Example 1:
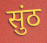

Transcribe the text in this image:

सुंठ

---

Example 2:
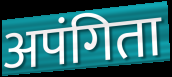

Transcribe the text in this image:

अपंगिता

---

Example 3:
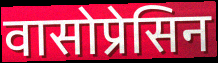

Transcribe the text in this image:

वासोप्रेसिन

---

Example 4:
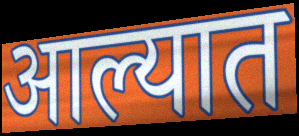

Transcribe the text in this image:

आल्यात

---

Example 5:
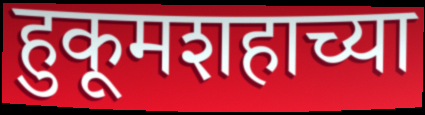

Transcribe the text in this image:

हुकूमशहाच्या